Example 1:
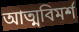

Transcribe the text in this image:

আত্মবিমর্শ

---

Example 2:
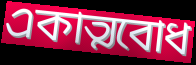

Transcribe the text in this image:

একাত্মবোধ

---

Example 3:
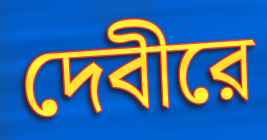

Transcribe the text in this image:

দেবীরে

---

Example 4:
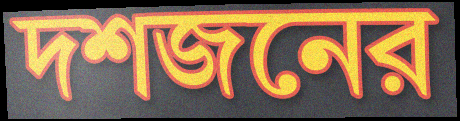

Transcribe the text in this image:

দশজনের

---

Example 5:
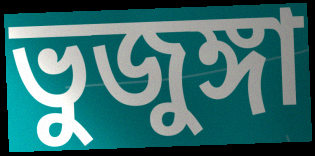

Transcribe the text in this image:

ভুজুঙ্গা